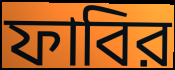
ফাবির